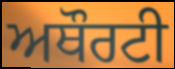
ਅਥੌਰਟੀ